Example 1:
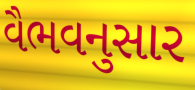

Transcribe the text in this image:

વૈભવનુસાર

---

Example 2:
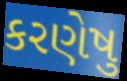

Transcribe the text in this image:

કરણેષુ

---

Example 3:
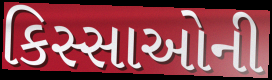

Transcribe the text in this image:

કિસ્સાઓની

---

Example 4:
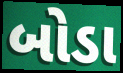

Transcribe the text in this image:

બોડા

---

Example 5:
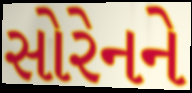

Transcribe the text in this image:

સોરેનને